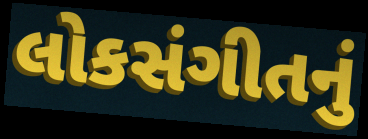
લોકસંગીતનું